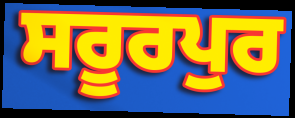
ਸਰੂਰਪੁਰ